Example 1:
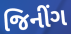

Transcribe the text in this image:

જિનીંગ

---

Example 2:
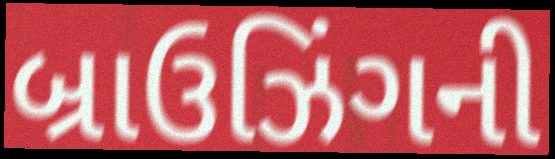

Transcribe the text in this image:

બ્રાઉઝિંગની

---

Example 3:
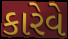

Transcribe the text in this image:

કારેવે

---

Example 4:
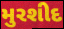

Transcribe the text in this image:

મુરશીદ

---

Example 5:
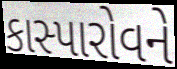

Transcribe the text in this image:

કાસ્પારોવને